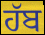
ਹੱਬ